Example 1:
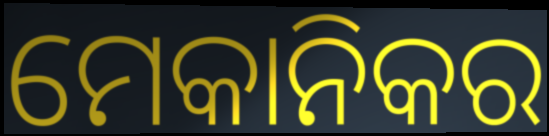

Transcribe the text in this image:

ମେକାନିକର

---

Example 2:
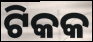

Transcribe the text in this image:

ଟିକକ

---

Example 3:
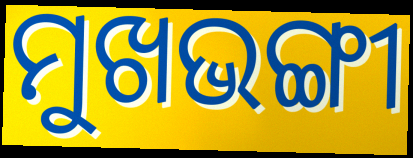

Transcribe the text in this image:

ମୁଖଭଙ୍ଗୀ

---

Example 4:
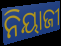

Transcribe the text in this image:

ନିୟାଜୀ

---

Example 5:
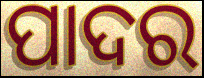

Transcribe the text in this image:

ପାଦର